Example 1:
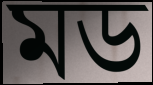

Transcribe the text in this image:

মড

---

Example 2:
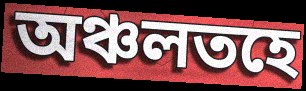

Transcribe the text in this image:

অঞ্চলতহে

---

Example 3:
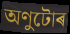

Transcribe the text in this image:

অণুটোৰ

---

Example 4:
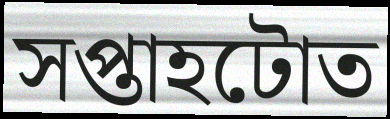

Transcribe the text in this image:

সপ্তাহটোত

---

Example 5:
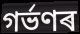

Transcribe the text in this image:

গৰ্ভণৰ